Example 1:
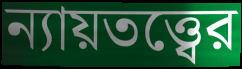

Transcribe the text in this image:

ন্যায়তত্ত্বের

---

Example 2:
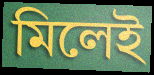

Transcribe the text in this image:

মিলেই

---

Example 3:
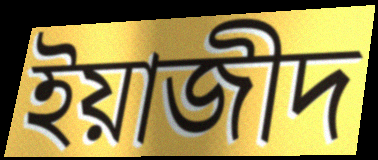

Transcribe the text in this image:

ইয়াজীদ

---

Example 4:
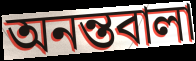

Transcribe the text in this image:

অনন্তবালা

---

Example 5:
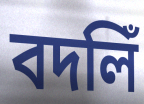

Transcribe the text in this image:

বদলিঁ